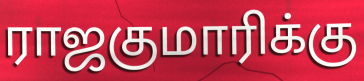
ராஜகுமாரிக்கு